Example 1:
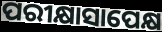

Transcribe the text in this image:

ପରୀକ୍ଷାସାପେକ୍ଷ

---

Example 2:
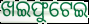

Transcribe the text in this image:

ଖଇଫୁଟେଇ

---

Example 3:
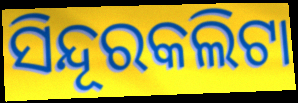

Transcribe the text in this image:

ସିନ୍ଦୂରକଲିଟା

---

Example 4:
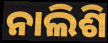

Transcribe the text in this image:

ନାଲିଶି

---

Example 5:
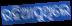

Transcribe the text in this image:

ରହିଆସୁଥିଲେ